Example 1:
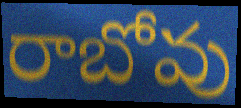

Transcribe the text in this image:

రాబోవు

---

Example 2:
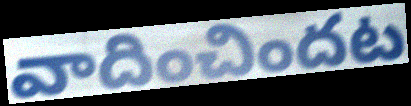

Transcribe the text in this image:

వాదించిందట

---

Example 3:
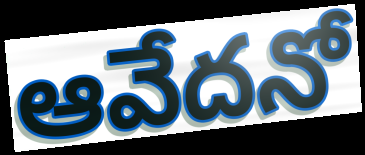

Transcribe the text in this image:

ఆవేదనో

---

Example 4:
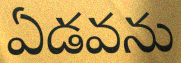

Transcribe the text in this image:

ఏడవను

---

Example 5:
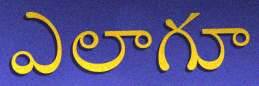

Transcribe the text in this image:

ఎలాగూ